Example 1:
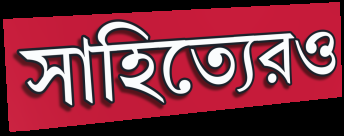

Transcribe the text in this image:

সাহিত্যেরও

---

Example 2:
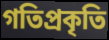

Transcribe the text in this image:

গতিপ্রকৃতি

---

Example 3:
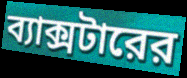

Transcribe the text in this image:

ব্যাক্সটারের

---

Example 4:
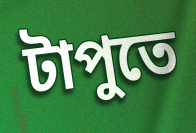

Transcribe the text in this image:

টাপুতে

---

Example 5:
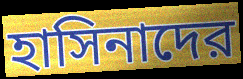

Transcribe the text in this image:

হাসিনাদের